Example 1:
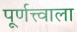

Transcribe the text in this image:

पूर्णत्त्वाला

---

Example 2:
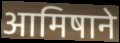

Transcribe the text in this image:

आमिषाने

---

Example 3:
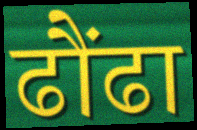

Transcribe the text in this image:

ढौंढा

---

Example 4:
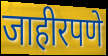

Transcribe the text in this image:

जाहीरपणे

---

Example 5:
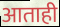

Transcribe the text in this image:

आताही